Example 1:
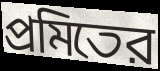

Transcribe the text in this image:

প্রমিতের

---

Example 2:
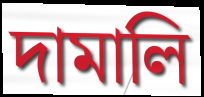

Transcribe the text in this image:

দামালি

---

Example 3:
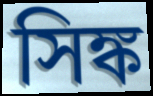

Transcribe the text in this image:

সিঙ্ক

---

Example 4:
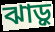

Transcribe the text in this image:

ঝাড়ু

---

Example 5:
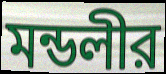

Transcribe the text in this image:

মন্ডলীর